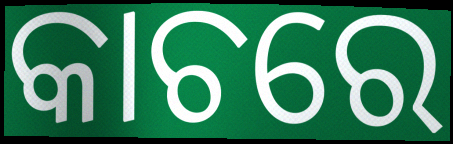
କାଚରେ